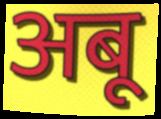
अबू